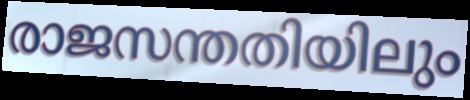
രാജസന്തതിയിലും